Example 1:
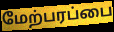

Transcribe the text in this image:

மேற்பரப்பை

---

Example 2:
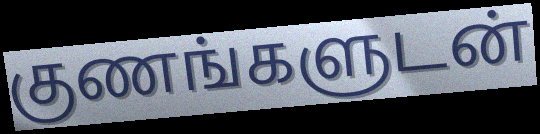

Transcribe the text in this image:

குணங்களுடன்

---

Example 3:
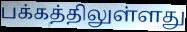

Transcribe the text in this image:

பக்கத்திலுள்ளது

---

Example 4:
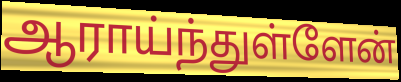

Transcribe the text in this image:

ஆராய்ந்துள்ளேன்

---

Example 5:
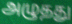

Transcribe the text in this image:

அழுதது